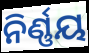
ନିର୍ଣ୍ଣୟ